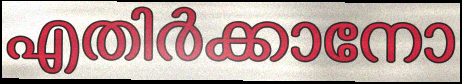
എതിർക്കാനോ